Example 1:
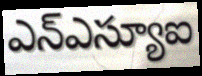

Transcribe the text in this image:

ఎన్ఎస్యూఐ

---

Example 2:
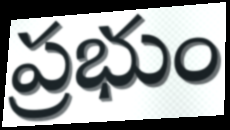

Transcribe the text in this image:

ప్రభుం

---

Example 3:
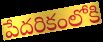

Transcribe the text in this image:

పేదరికంలోకి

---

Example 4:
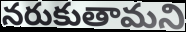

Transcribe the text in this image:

నరుకుతామని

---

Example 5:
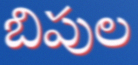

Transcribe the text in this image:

బిపుల